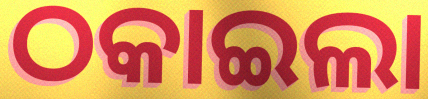
ଠକାଇଲା